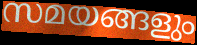
സമയങ്ങളും